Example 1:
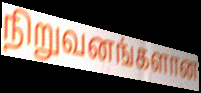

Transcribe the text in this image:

நிறுவனங்களான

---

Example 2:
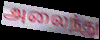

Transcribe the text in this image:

அலைந்து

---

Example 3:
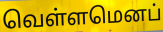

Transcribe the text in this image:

வெள்ளமெனப்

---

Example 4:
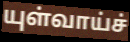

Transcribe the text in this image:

யுள்வாய்ச்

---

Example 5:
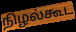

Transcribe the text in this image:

நிழல்கூட